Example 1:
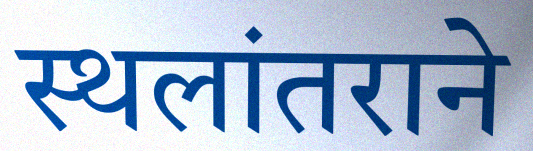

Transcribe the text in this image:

स्थलांतराने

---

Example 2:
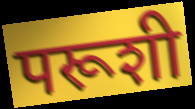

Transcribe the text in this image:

परूशी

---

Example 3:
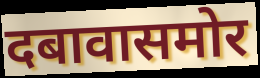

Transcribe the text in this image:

दबावासमोर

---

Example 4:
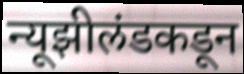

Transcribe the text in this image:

न्यूझीलंडकडून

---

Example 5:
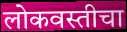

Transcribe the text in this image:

लोकवस्तीचा